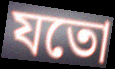
যতো